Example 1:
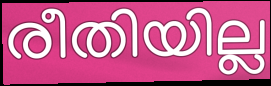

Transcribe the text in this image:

രീതിയില്ല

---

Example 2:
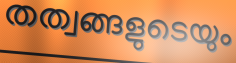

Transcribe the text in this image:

തത്വങ്ങളുടെയും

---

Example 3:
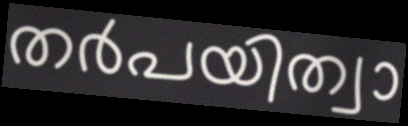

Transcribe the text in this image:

തർപയിത്വാ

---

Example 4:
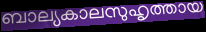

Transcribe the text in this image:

ബാല്യകാലസുഹൃത്തായ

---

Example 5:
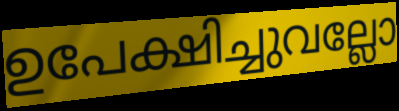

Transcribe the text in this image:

ഉപേക്ഷിച്ചുവല്ലോ